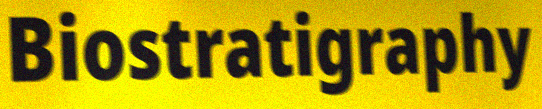
Biostratigraphy